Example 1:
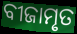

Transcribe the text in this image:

ବୀଜାମୃତ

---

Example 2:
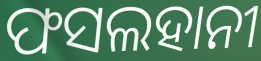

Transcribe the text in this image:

ଫସଲହାନୀ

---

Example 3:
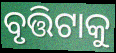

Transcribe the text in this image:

ବୃତ୍ତିଟାକୁ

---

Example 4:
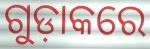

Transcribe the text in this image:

ଗୁଡ଼ାକରେ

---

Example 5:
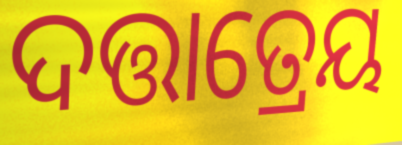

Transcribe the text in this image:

ଦତ୍ତାତ୍ରେୟ